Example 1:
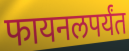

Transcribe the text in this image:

फायनलपर्यंत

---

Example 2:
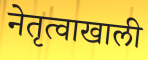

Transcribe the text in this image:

नेतृत्वाखाली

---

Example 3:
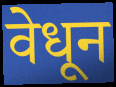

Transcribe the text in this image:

वेधून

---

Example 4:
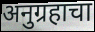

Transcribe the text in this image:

अनुग्रहाचा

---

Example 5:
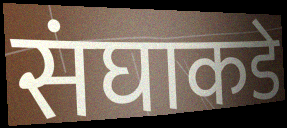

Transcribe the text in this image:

संघाकडे